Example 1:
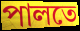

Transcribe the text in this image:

পালতে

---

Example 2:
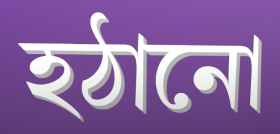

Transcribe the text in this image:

হঠানো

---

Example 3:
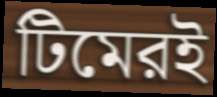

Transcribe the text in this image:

টিমেরই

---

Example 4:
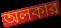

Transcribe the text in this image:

অলকার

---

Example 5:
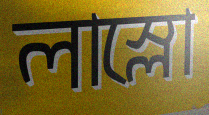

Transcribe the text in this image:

লাস্লো